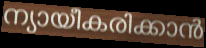
ന്യായീകരിക്കാൻ